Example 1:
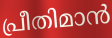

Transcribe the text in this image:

പ്രീതിമാൻ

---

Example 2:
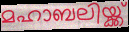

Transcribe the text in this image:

മഹാബലിയ്ക്ക്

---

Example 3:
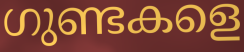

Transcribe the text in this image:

ഗുണ്ടകളെ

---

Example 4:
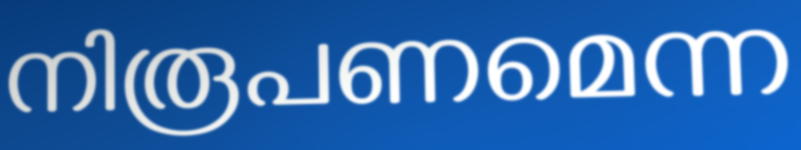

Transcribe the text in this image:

നിരൂപണമെന്ന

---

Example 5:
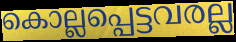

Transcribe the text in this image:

കൊല്ലപ്പെട്ടവരല്ല